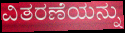
ವಿತರಣೆಯನ್ನು